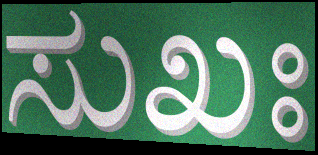
ಸುಖಃ